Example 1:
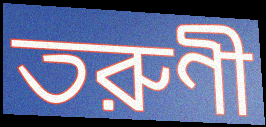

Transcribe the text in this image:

তরুণী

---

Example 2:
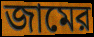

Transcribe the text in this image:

জামের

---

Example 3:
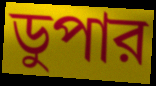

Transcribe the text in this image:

ডুপার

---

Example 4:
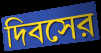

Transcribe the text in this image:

দিবসের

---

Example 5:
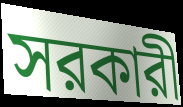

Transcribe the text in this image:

সরকারী